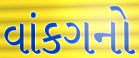
વાંકગનો